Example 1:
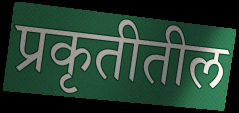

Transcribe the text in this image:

प्रकृतीतील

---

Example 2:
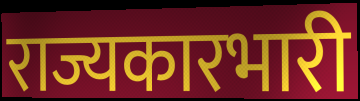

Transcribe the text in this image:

राज्यकारभारी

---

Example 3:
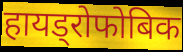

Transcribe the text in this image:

हायड्रोफोबिक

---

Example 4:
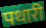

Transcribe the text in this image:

पथारी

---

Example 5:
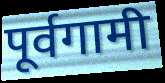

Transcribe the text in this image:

पूर्वगामी